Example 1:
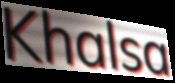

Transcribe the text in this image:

Khalsa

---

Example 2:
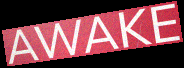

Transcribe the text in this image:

AWAKE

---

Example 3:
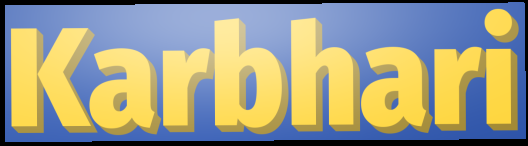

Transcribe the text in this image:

Karbhari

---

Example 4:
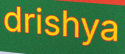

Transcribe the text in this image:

drishya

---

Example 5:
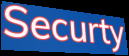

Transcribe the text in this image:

Securty